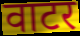
वाटर